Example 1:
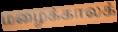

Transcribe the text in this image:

மழைக்காலக்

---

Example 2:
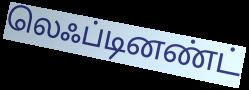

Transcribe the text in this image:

லெஃப்டினண்ட்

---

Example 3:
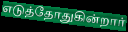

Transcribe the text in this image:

எடுத்தோதுகின்றார்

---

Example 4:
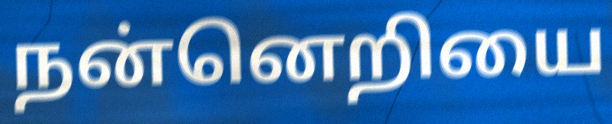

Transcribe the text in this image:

நன்னெறியை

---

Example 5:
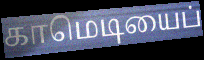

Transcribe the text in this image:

காமெடியைப்